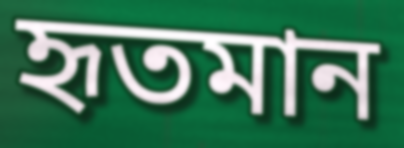
হৃতমান